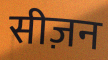
सीज़न